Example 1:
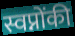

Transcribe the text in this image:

स्वप्नोंकी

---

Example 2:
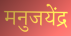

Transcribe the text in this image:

मनुजयेंद्र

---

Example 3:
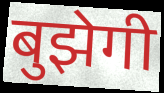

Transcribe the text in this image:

बुझेगी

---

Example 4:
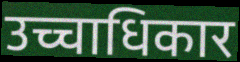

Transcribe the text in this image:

उच्चाधिकार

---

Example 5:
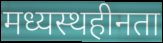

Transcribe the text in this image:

मध्यस्थहीनता